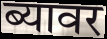
ब्यावर